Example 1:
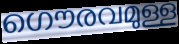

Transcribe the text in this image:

ഗൌരവമുള്ള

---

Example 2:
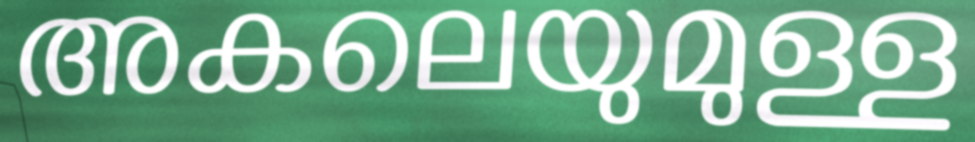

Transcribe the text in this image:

അകലെയുമുള്ള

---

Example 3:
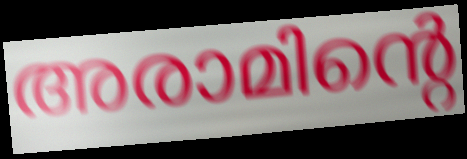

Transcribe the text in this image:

അരാമിന്റെ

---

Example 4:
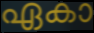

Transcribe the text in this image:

ഏകാ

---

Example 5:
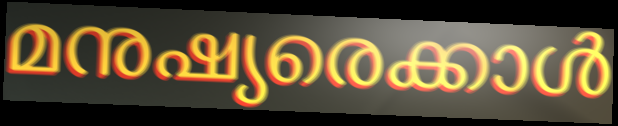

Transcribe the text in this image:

മനുഷ്യരെക്കാൾ